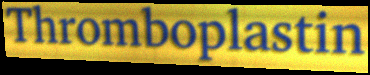
Thromboplastin